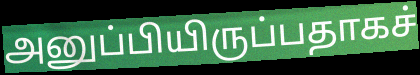
அனுப்பியிருப்பதாகச்